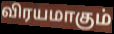
விரயமாகும்